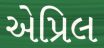
એપ્રિલ